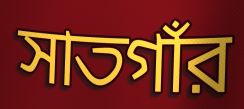
সাতগাঁর